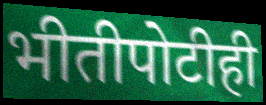
भीतीपोटीही